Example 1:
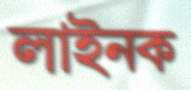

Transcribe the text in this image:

লাইনক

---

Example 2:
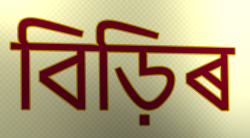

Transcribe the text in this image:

বিড়িৰ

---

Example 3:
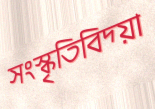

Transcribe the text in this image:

সংস্কৃতিবিদ্য়া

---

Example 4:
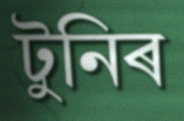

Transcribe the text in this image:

টুনিৰ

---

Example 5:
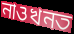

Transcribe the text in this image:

নাওখনত